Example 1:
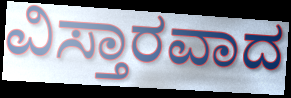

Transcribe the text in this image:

ವಿಸ್ತಾರವಾದ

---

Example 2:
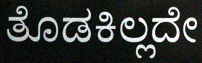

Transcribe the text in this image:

ತೊಡಕಿಲ್ಲದೇ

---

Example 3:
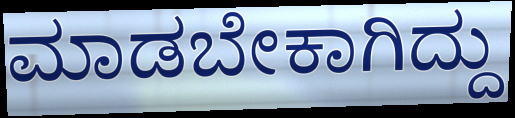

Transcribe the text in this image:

ಮಾಡಬೇಕಾಗಿದ್ದು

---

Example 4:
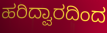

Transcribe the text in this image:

ಹರಿದ್ವಾರದಿಂದ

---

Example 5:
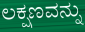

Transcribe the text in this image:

ಲಕ್ಷಣವನ್ನು